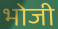
भोजी